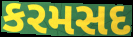
કરમસદ